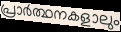
പ്രാർത്ഥനകളാലും